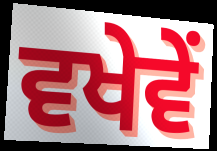
ਵਖੇਵੇਂ